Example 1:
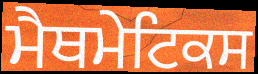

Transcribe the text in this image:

ਮੈਥਮੇਟਿਕਸ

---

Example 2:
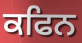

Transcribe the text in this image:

ਕਫਿਨ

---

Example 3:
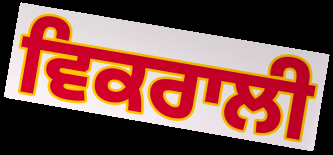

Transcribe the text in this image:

ਵਿਕਰਾਲੀ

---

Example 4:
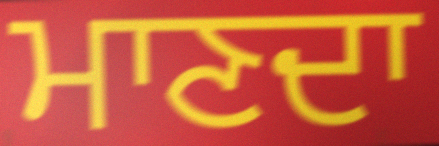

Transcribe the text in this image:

ਮਾਣਦਾ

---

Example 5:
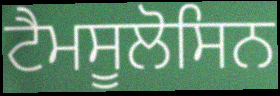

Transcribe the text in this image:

ਟੈਮਸੂਲੋਸਿਨ